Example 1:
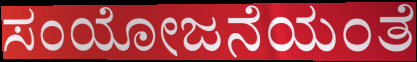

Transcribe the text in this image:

ಸಂಯೋಜನೆಯಂತೆ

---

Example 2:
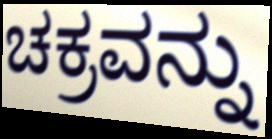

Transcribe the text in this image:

ಚಕ್ರವನ್ನು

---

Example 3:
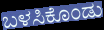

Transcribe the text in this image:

ಬಳಸಿಕೊಂಡು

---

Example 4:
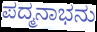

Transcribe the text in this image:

ಪದ್ಮನಾಭನು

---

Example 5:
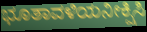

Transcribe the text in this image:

ಭೂತಾವಳಿಯನೀಕ್ಷಿಸಿ